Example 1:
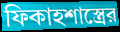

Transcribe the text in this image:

ফিকাহশাস্ত্রের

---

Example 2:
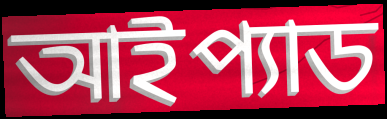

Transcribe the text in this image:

আইপ্যাড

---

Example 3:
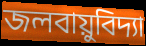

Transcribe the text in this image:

জলবায়ুবিদ্যা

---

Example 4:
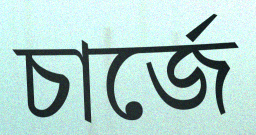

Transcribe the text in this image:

চার্জে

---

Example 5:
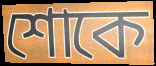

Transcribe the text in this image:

শোকে